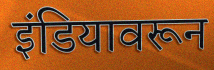
इंडियावरून